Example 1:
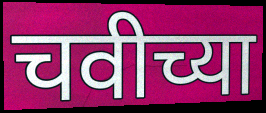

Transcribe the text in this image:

चवीच्या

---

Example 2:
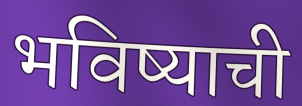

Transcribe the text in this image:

भविष्याची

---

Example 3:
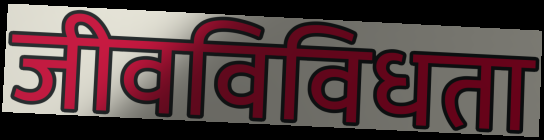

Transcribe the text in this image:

जीवविविधता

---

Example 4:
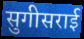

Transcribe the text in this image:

सुगीसराई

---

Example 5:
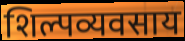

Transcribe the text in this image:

शिल्पव्यवसाय